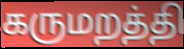
கருமறத்தி